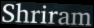
Shriram